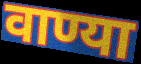
वाण्या